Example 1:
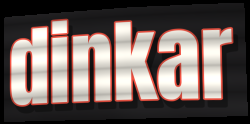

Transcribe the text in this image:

dinkar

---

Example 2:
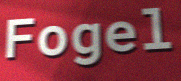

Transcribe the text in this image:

Fogel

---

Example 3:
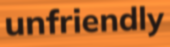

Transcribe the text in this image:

unfriendly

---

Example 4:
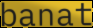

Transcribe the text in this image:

banat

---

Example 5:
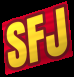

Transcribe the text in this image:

SFJ